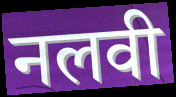
नलवी